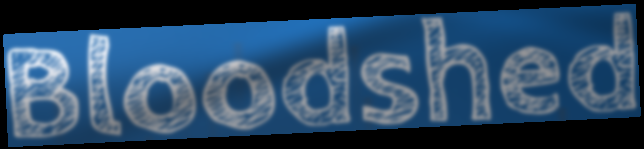
Bloodshed